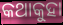
କଥାକୁହା